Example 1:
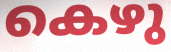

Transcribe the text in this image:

കെഴു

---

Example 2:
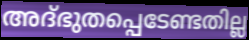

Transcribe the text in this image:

അദ്ഭുതപ്പെടേണ്ടതില്ല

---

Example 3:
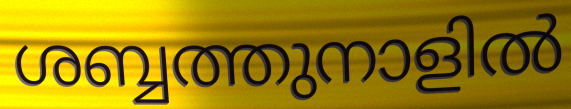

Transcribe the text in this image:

ശബ്ബത്തുനാളിൽ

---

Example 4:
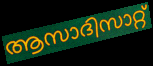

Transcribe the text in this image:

ആസാദിസാറ്റ്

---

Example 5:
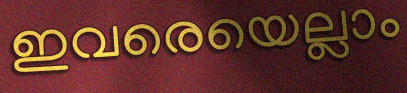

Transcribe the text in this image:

ഇവരെയെല്ലാം